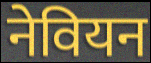
नेवियन